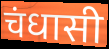
चंधासी